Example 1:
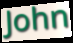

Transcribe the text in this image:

John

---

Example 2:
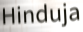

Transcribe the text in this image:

Hinduja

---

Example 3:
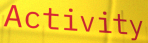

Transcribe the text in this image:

Activity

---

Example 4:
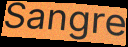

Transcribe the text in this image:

Sangre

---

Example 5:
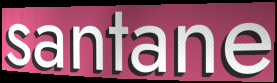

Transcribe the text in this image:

santane